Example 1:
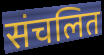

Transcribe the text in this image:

संचलित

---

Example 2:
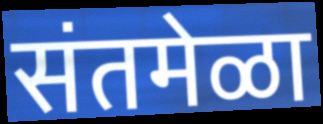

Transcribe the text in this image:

संतमेळा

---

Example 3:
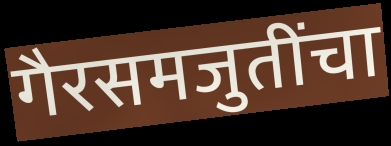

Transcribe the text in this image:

गैरसमजुतींचा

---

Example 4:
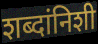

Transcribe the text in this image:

शब्दांनिशी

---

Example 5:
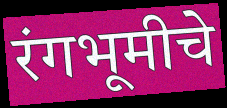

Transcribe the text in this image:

रंगभूमीचे